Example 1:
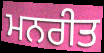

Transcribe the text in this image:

ਮਨਰੀਤ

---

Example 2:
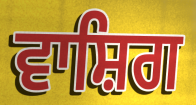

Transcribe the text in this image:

ਵਾਸ਼ਿਗ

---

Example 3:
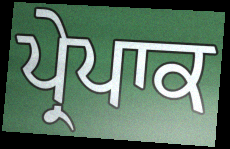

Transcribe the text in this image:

ਪ੍ਰੇਪਾਕ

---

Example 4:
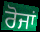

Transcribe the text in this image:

ਰੋਜਾਂ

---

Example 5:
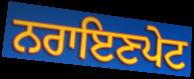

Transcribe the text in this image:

ਨਰਾਇਣਪੇਟ